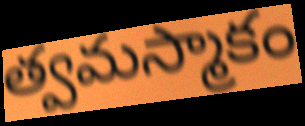
త్వమస్మాకం